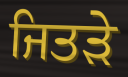
ਜਿਤੜੇ